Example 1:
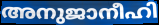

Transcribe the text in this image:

അനുജാനീഹി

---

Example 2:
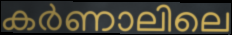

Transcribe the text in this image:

കർണാലിലെ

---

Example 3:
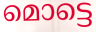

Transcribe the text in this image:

മൊട്ടെ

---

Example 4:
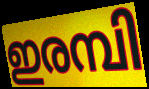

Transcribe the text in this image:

ഇരമ്പി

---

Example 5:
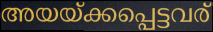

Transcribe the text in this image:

അയയ്ക്കപ്പെട്ടവര്